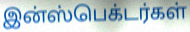
இன்ஸ்பெக்டர்கள்